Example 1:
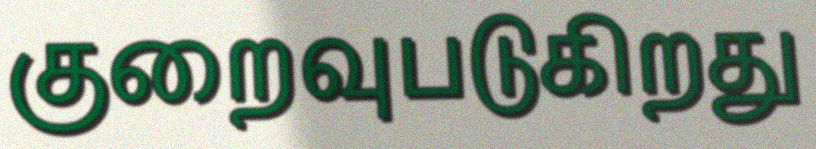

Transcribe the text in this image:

குறைவுபடுகிறது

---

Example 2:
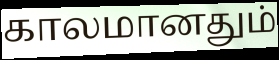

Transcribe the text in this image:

காலமானதும்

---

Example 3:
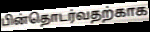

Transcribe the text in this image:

பின்தொடர்வதற்காக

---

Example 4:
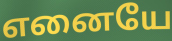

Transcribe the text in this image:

எனையே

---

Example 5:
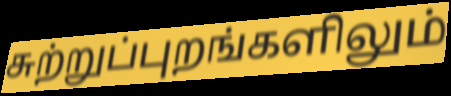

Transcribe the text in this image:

சுற்றுப்புறங்களிலும்